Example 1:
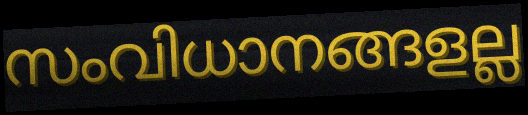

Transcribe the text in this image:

സംവിധാനങ്ങളല്ല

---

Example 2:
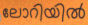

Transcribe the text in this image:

ലോറിയിൽ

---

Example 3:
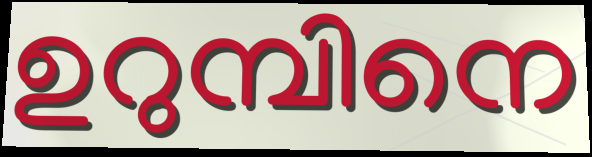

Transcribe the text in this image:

ഉറുമ്പിനെ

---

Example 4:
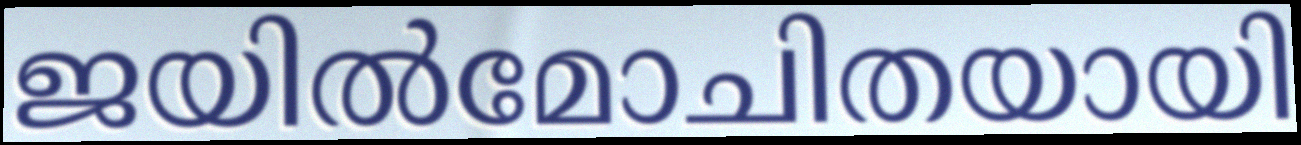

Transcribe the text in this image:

ജയിൽമോചിതയായി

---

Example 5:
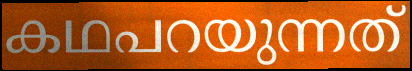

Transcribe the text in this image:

കഥപറയുന്നത്